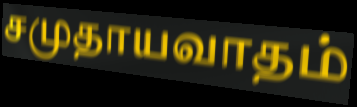
சமுதாயவாதம்